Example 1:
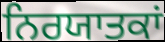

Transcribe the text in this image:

ਨਿਰਯਾਤਕਾਂ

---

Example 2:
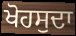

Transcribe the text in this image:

ਖੋਹਸੁਦਾ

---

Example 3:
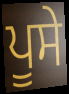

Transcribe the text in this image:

ਪੂਸੇ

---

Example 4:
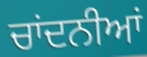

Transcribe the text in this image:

ਚਾਂਦਨੀਆਂ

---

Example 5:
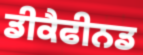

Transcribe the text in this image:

ਡੀਕੈਫੀਨਡ